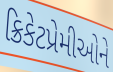
ક્રિકેટપ્રેમીઓને